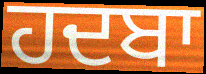
ਹਦਬਾ